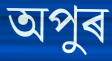
অপুৰ